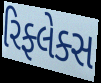
રિફ્લેક્સ